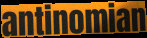
antinomian